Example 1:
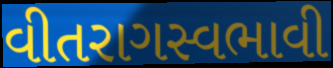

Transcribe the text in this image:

વીતરાગસ્વભાવી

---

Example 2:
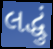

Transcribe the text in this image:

લદ્ધું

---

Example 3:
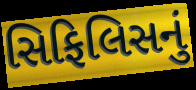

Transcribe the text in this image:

સિફિલિસનું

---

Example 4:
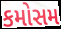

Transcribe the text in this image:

કમોસમ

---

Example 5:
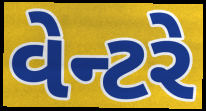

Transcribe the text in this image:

વેન્ટરે